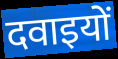
दवाइयों